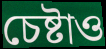
চেষ্টাও